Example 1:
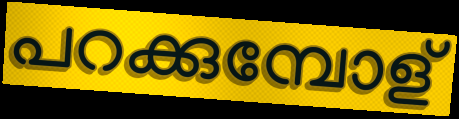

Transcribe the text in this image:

പറക്കുമ്പോള്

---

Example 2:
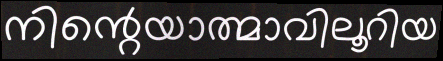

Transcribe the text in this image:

നിന്റെയാത്മാവിലൂറിയ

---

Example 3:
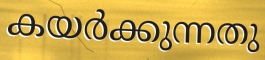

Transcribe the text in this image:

കയർക്കുന്നതു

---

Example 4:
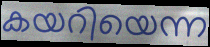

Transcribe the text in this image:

കയറിയെന്ന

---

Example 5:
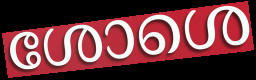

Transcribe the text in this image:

ശോശെ